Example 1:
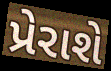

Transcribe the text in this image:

પ્રેરાશે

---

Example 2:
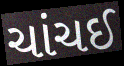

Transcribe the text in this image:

ચાંચઈ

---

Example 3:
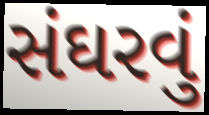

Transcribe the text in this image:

સંઘરવું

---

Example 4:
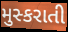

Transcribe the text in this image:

મુસ્કરાતી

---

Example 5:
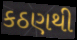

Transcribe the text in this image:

કઠણથી